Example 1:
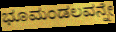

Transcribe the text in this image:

ಭೂಮಂಡಲವನ್ನೇ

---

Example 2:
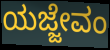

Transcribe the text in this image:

ಯಜ್ಜೇವಂ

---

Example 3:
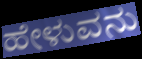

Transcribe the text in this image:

ಹೇಳುವನು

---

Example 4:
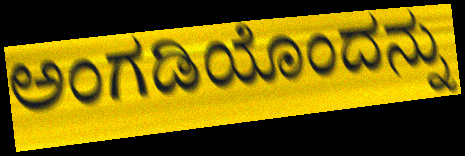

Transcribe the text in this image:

ಅಂಗಡಿಯೊಂದನ್ನು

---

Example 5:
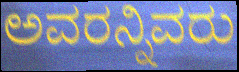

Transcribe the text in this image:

ಅವರನ್ನಿವರು